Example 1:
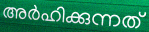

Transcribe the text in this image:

അർഹിക്കുന്നത്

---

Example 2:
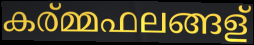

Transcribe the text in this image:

കര്മ്മഫലങ്ങള്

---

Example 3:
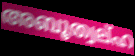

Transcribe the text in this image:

അബൂത്വല്ഹ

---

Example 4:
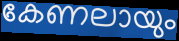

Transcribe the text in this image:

കേണലായും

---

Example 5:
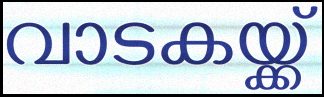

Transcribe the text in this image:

വാടകയ്ക്ക്